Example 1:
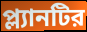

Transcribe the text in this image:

প্ল্যানটির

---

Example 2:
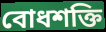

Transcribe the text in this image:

বোধশক্তি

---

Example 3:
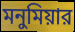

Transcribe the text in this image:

মনুমিয়ার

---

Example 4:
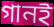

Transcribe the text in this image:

গানই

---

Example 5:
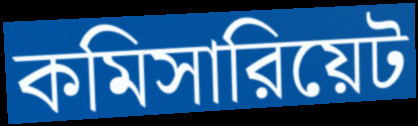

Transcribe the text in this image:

কমিসারিয়েট